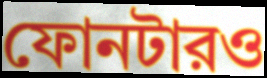
ফোনটারও